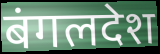
बंगलदेश